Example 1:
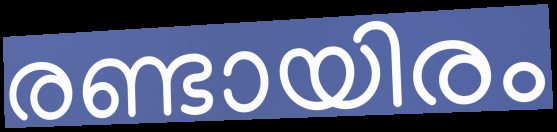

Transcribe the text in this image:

രണ്ടായിരം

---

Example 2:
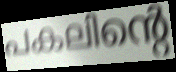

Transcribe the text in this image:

പകലിന്റെ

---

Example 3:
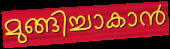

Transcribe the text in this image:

മുങ്ങിച്ചാകാൻ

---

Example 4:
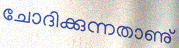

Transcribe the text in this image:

ചോദിക്കുന്നതാണു്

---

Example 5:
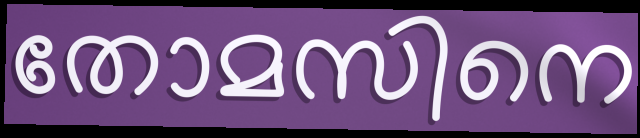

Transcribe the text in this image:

തോമസിനെ